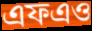
এফএও